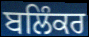
ਬਲਿੰਕਰ